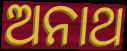
ଅନାଥ